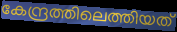
കേന്ദ്രത്തിലെത്തിയത്